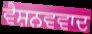
ਵੈਸ਼ਨਵਵਾਦ